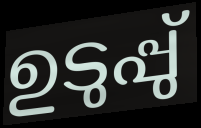
ഉടുപ്പു്